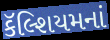
કૅલ્શિયમનાં